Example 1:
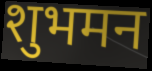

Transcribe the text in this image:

शुभमन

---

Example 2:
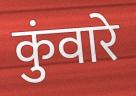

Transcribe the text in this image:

कुंवारे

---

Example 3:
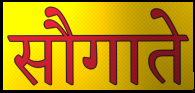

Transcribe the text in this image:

सौगाते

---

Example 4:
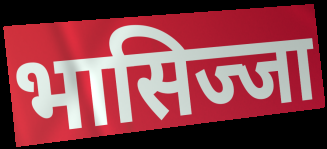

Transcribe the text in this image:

भासिज्जा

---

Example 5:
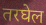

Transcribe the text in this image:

तरघेल